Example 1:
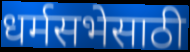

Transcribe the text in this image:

धर्मसभेसाठी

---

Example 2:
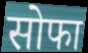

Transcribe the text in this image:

सोफा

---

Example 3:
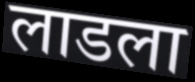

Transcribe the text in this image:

लाडला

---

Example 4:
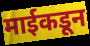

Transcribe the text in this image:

माईकडून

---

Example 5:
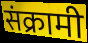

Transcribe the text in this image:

संक्रामी